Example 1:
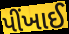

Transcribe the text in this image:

પીંખાઈ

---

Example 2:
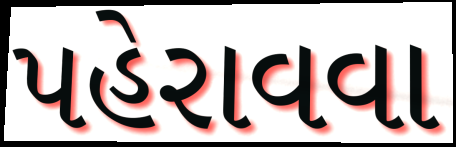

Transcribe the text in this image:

પહેરાવવા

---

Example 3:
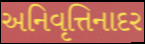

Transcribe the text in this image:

અનિવૃત્તિનાદર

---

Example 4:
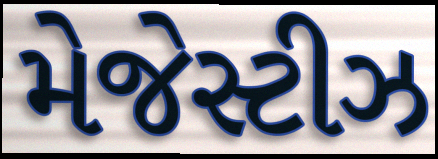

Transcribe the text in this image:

મેજેસ્ટીઝ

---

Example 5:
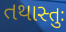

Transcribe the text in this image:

તથાસ્તુઃ